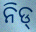
ନିଡ୍